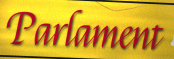
Parlament